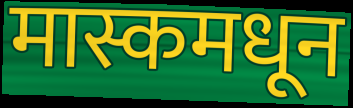
मास्कमधून